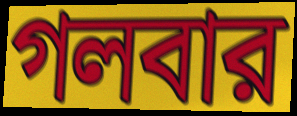
গলবার